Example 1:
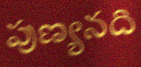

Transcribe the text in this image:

పుణ్యనది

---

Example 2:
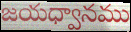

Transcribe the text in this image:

జయధ్వానము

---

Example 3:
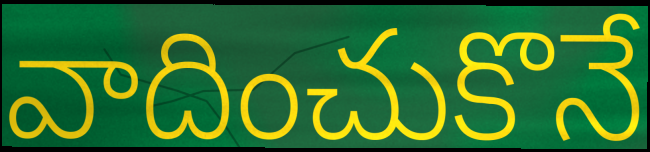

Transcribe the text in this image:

వాదించుకొనే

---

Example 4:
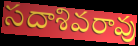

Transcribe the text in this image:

సదాశివరావు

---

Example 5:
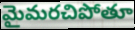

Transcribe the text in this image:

మైమరచిపోతూ